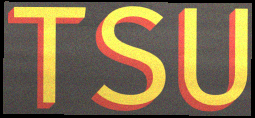
TSU